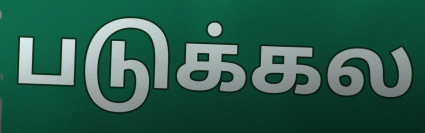
படுக்கல